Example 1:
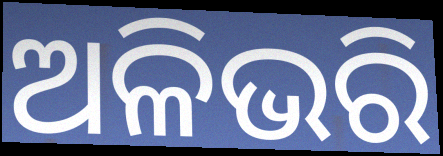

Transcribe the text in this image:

ଅଳିଭରି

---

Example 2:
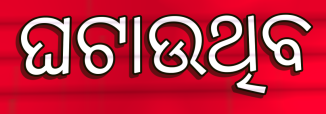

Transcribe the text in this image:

ଘଟାଉଥିବ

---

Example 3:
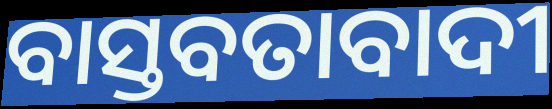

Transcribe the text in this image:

ବାସ୍ତବତାବାଦୀ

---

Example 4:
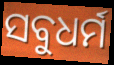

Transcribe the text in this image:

ସବୁଧର୍ମ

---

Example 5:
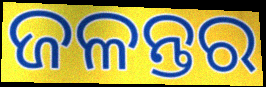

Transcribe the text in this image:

ଜଳନ୍ତର